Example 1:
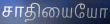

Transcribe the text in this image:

சாதியையோ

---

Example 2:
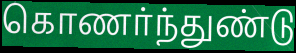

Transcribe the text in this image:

கொணர்ந்துண்டு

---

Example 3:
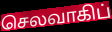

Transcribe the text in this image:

செலவாகிப்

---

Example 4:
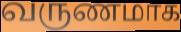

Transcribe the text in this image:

வருணமாக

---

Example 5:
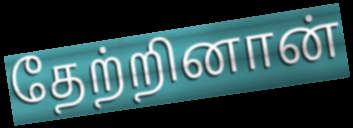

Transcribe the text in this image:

தேற்றினான்